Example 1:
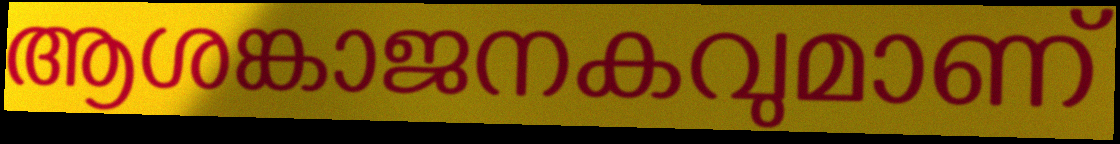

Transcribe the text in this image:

ആശങ്കാജനകവുമാണ്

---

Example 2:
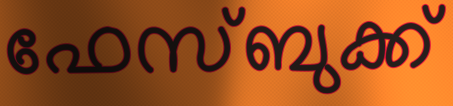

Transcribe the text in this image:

ഫേസ്ബുക്ക്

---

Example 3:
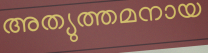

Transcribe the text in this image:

അത്യുത്തമനായ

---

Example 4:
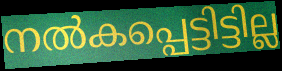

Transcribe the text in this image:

നൽകപ്പെട്ടിട്ടില്ല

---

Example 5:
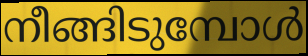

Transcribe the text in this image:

നീങ്ങിടുമ്പോൾ